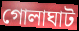
গোলাঘাট